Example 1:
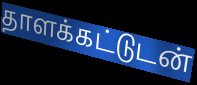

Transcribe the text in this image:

தாளக்கட்டுடன்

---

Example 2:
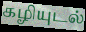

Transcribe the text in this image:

கழியுடல்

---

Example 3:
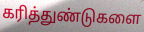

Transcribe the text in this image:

கரித்துண்டுகளை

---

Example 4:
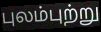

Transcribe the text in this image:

புலம்புற்று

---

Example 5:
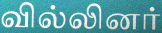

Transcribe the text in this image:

வில்லினர்